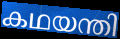
കഥയന്തി